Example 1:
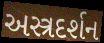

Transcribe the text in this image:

અસ્ત્રદર્શન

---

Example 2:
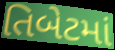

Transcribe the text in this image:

તિબેટમાં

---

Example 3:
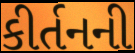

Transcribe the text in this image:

કીર્તનની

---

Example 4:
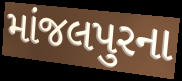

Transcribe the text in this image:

માંજલપુરના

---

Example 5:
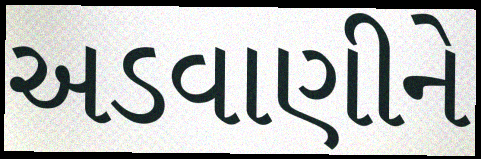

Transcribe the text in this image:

અડવાણીને